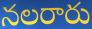
నలరారు